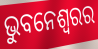
ଭୁବନେଶ୍ବରର